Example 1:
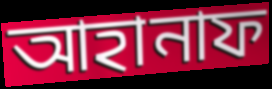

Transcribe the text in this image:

আহানাফ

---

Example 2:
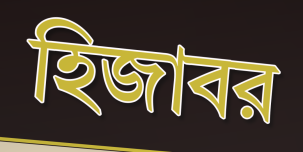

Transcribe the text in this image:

হিজাবর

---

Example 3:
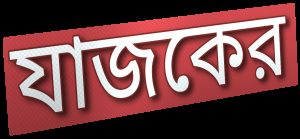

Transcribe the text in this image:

যাজকের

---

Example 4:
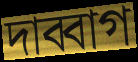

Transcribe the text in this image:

দাব্বাগ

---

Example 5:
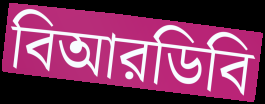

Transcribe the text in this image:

বিআরডিবি